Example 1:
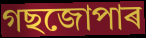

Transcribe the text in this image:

গছজোপাৰ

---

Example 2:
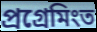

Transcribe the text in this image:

প্ৰগ্ৰেমিংত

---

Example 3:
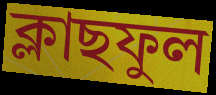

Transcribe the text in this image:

ক্লাছফুল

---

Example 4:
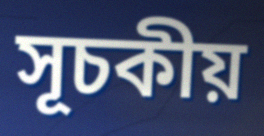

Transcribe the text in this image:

সূচকীয়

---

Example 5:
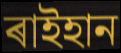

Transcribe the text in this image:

ৰাইহান